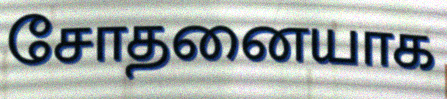
சோதனையாக